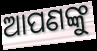
ଆପଣଙ୍କୁ